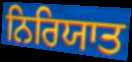
ਨਿਰਿਯਾਤ